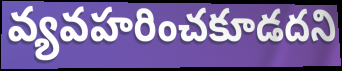
వ్యవహరించకూడదని